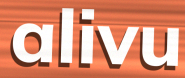
alivu